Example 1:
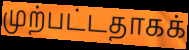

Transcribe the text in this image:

முற்பட்டதாகக்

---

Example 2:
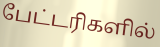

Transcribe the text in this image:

பேட்டரிகளில்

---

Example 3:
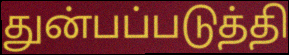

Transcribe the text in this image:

துன்பப்படுத்தி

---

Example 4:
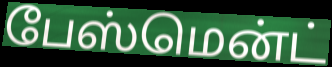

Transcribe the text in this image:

பேஸ்மென்ட்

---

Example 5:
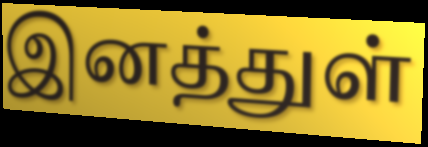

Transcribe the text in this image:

இனத்துள்